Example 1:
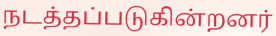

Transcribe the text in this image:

நடத்தப்படுகின்றனர்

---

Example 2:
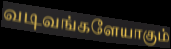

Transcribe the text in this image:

வடிவங்களேயாகும்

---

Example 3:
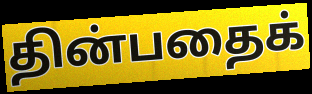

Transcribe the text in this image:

தின்பதைக்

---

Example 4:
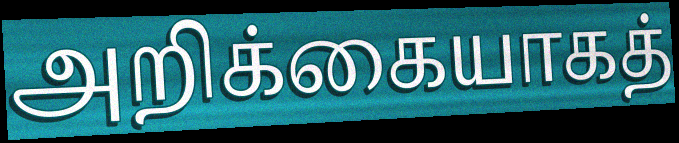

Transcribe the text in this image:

அறிக்கையாகத்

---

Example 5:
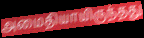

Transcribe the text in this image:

அமைதியாயிருந்தது